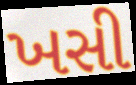
ખસી